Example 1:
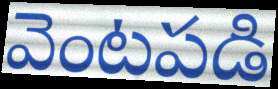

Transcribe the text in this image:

వెంటపడి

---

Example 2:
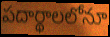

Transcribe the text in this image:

పదార్థాలలోనూ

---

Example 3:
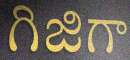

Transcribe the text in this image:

గిజిగా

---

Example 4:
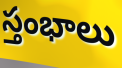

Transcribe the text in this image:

స్తంభాలు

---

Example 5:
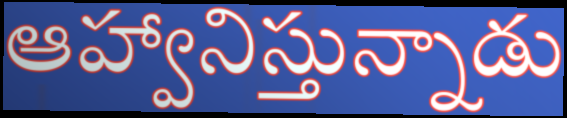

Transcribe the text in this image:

ఆహ్వానిస్తున్నాడు